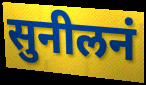
सुनीलनं